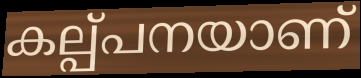
കല്പ്പനയാണ്